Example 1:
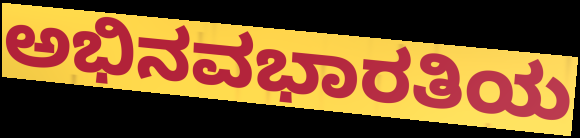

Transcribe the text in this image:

ಅಭಿನವಭಾರತಿಯ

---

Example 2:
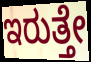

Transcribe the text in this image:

ಇರುತ್ತೇ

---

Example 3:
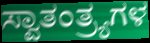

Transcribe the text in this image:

ಸ್ವಾತಂತ್ರ್ಯಗಳ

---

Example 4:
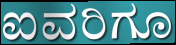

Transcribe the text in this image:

ಐವರಿಗೂ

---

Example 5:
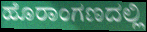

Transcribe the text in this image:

ಹೊರಾಂಗಣದಲ್ಲಿ